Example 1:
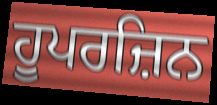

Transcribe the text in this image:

ਹੂਪਰਜ਼ਿਨ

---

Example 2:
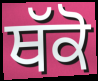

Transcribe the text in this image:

ਥੱਕੋ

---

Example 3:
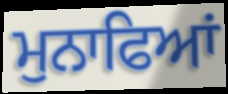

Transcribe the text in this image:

ਮੁਨਾਫਿਆਂ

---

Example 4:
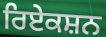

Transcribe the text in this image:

ਰਿਏਕਸ਼ਨ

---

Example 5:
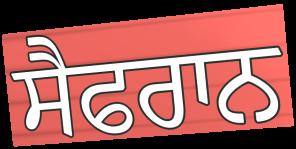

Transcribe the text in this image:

ਸੈਫਰਾਨ